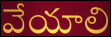
వేయాలి